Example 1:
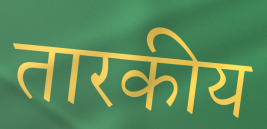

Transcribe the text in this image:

तारकीय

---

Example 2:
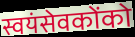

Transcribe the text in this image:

स्वयंसेवकोंको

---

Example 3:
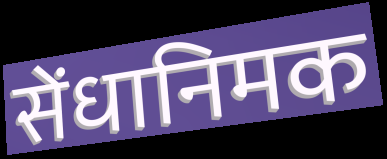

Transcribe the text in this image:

सेंधानिमक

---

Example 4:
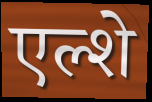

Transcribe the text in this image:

एल्शे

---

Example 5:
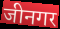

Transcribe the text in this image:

जीनगर